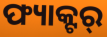
ଫ୍ୟାକ୍ଟର୍